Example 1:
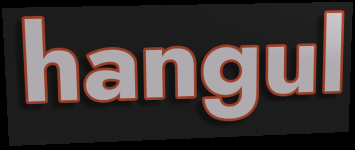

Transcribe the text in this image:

hangul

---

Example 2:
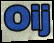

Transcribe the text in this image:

Oij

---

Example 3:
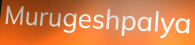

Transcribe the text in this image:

Murugeshpalya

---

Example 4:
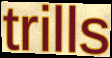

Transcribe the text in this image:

trills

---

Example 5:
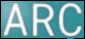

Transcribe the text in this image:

ARC